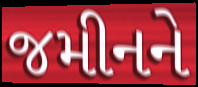
જમીનને